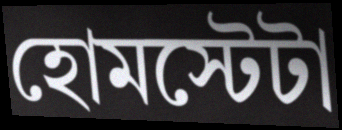
হোমস্টেটা